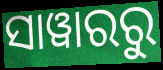
ସାୱାରରୁ